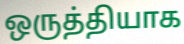
ஒருத்தியாக